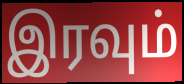
இரவும்